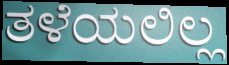
ತಳೆಯಲಿಲ್ಲ